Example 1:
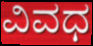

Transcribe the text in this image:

ವಿವಧ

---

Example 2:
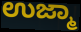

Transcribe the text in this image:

ಉಜ್ಮಾ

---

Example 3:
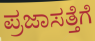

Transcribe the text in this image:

ಪ್ರಜಾಸತ್ತೆಗೆ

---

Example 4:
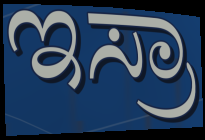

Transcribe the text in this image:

ಇಸ್ರಾ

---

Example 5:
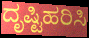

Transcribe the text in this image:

ದೃಷ್ಟಿಹರಿಸಿ